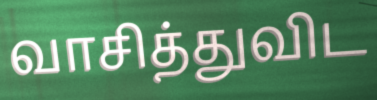
வாசித்துவிட